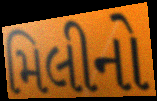
મિલીનો